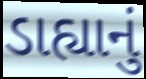
ડાહ્યાનું